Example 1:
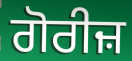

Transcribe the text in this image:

ਗੋਰੀਜ਼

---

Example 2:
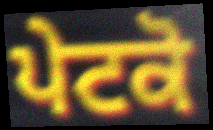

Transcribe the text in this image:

ਪੇਟਕੋ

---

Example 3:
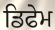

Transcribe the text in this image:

ਡਿਫੇਮ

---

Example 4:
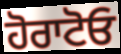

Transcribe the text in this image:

ਹੋਰਾਟੋਓ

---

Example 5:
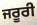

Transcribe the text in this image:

ਜਰੂਰੀ